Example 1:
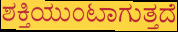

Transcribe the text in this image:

ಶಕ್ತಿಯುಂಟಾಗುತ್ತದೆ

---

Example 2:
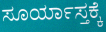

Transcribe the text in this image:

ಸೂರ್ಯಾಸ್ತಕ್ಕೆ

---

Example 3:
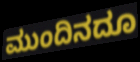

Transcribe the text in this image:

ಮುಂದಿನದೂ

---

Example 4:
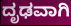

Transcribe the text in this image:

ದೃಢವಾಗಿ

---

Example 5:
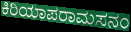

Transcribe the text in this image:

ಕಿರಿಯಾಪರಾಮಸನಂ